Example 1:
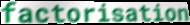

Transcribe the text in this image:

factorisation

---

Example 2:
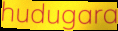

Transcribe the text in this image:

hudugara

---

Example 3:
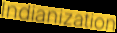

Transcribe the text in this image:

Indianization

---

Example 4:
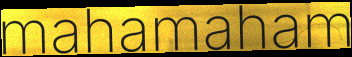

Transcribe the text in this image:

mahamaham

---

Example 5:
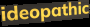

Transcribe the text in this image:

ideopathic